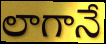
లాగానే